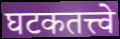
घटकतत्त्वे